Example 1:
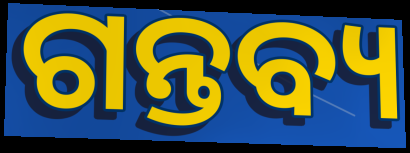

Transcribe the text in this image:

ଗନ୍ତବ୍ୟ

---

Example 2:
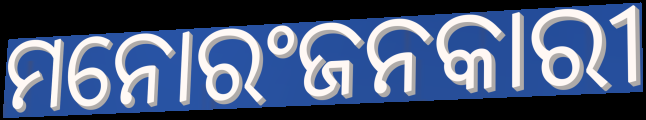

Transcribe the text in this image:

ମନୋରଂଜନକାରୀ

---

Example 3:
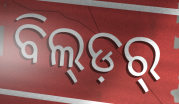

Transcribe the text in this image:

ବିଲ୍ଡ଼ର୍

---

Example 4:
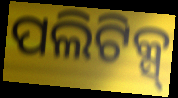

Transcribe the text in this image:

ପଲିଟିକ୍ସ୍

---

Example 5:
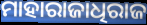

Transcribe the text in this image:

ମାହାରାଜାଧିରାଜ